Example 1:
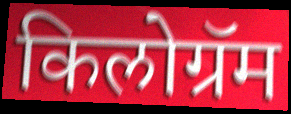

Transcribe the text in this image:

किलोग्रॅम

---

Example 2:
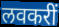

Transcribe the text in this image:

लवकरीं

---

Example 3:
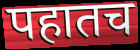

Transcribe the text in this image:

पहातच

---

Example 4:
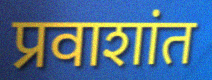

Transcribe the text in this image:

प्रवाशांत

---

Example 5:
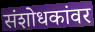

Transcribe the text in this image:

संशोधकांवर